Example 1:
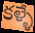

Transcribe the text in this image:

కళ్ళే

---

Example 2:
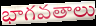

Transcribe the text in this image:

భాగవతాలు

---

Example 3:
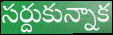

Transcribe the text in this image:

సర్దుకున్నాక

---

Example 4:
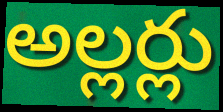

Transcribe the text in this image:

అల్లర్లు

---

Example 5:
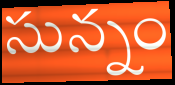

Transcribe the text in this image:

సున్నం